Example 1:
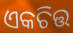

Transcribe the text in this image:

ଏକଚିତ୍ତ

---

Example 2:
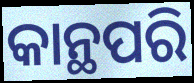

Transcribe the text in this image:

କାନ୍ଥପରି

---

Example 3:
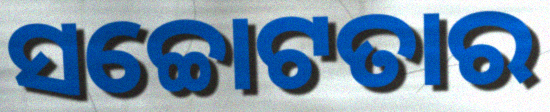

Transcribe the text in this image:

ସଚ୍ଚୋଟତାର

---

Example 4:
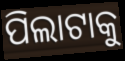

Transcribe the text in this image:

ପିଲାଟାକୁ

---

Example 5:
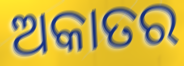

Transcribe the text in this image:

ଅକାତର